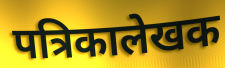
पत्रिकालेखक